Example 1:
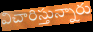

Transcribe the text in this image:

విచారిస్తున్నారు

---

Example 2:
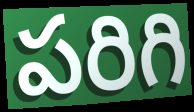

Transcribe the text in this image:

పరిగి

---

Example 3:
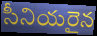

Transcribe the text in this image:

సీనియరైన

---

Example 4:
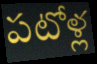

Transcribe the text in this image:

పటోళ్ల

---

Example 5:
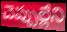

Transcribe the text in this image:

చెప్పుల్లేని